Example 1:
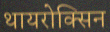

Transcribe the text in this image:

थायरोक्सिन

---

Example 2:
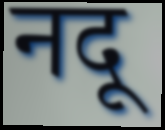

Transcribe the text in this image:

नदू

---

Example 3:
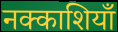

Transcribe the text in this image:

नक्काशियाँ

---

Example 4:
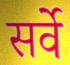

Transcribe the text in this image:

सर्वे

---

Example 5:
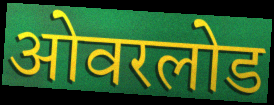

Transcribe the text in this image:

ओवरलोड